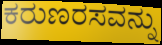
ಕರುಣರಸವನ್ನು